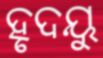
ହୃଦୟୁ